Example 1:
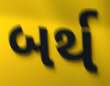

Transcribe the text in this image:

બર્થ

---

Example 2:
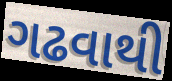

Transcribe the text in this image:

ગઢવાથી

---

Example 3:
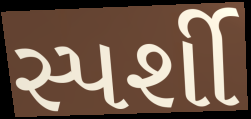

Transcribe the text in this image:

સ્પર્શી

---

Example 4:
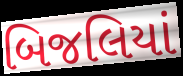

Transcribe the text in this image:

બિજલિયાં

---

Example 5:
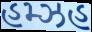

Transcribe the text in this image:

હમ્ઝહ